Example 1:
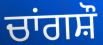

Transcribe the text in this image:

ਚਾਂਗਸ਼ੌ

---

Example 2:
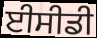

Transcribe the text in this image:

ਈਸੀਡੀ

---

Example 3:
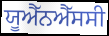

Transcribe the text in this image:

ਯੂਐੱਨਐੱਸਸੀ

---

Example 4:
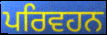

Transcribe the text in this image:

ਪਰਿਵਹਨ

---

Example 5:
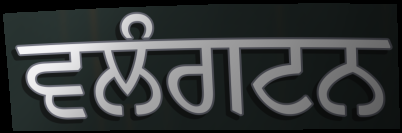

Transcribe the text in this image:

ਵਲੰਗਟਨ